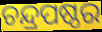
ଚନ୍ଦ୍ରପଷ୍ଠର